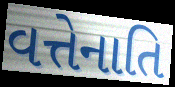
વત્તેનાતિ